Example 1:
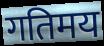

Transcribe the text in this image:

गतिमय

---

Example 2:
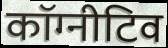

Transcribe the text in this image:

कॉग्‍नीटिव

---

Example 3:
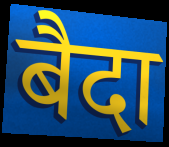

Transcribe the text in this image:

बैदा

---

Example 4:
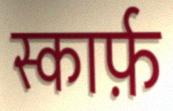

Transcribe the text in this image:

स्कार्फ़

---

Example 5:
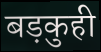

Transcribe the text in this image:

बड़कुही